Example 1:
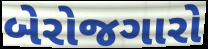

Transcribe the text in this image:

બેરોજગારો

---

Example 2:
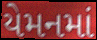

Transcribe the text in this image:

યેમનમાં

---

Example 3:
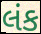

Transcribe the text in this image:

લંક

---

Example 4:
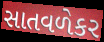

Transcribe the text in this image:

સાતવળેકર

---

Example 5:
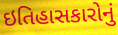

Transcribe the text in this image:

ઇતિહાસકારોનું